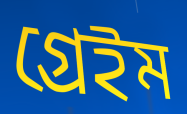
গ্রেইম